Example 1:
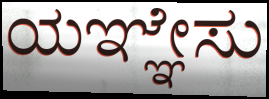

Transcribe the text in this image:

ಯಞ್ಞೇಸು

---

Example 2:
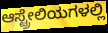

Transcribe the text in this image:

ಆಸ್ಟ್ರೇಲಿಯಗಳಲ್ಲಿ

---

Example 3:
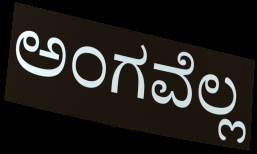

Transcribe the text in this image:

ಅಂಗವೆಲ್ಲ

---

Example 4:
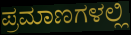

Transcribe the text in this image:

ಪ್ರಮಾಣಗಳಲ್ಲಿ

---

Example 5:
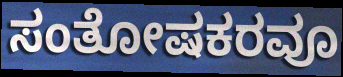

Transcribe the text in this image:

ಸಂತೋಷಕರವೂ